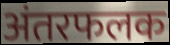
अंतरफलक